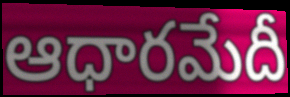
ఆధారమేదీ